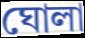
ঘোলা